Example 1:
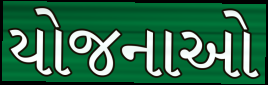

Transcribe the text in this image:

યોજનાઓ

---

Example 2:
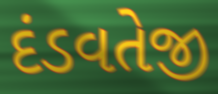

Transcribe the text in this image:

દંડવતેજી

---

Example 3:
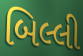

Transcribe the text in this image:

બિલ્લી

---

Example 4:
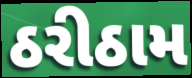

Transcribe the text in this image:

ઠરીઠામ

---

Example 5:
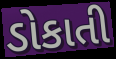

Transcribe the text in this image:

ડોકાતી